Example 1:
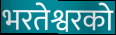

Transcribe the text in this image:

भरतेश्वरको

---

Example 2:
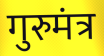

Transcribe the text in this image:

गुरुमंत्र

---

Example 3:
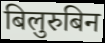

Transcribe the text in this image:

बिलुरुबिन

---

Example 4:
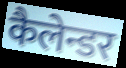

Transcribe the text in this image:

कैलेन्डर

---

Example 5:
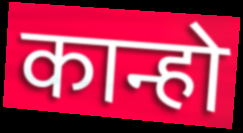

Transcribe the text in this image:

कान्हो